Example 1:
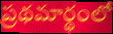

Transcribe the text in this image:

ప్రథమార్థంలో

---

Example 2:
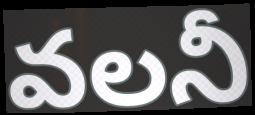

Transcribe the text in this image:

వలనీ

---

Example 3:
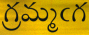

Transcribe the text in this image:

గ్రమ్మఁగ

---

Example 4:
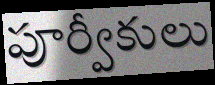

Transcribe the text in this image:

పూర్వీకులు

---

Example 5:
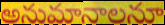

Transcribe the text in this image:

అనుమానాలనూ